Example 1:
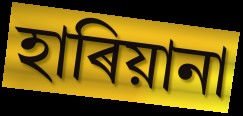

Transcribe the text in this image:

হাৰিয়ানা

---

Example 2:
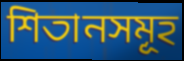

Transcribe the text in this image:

শিতানসমূহ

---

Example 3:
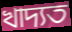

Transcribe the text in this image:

খাদ্যত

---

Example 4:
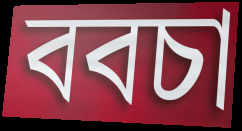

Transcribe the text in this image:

ববচা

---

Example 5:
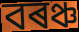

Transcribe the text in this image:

বৰঞ্চ